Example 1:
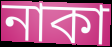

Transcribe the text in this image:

নাকা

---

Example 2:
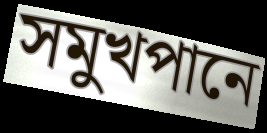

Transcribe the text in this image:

সমুখপানে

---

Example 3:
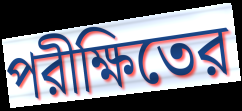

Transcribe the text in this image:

পরীক্ষিতের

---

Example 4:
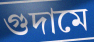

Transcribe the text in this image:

গুদামে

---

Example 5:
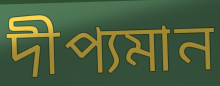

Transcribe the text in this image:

দীপ্যমান